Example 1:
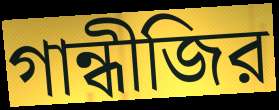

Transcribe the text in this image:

গান্ধীজির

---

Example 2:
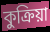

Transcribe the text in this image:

কুক্রিয়া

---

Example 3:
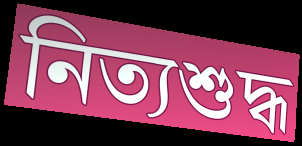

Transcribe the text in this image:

নিত্যশুদ্ধ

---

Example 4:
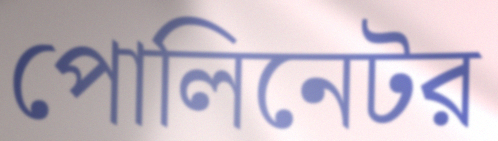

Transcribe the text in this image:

পোলিনেটর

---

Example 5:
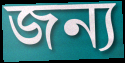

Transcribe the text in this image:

জন্য়